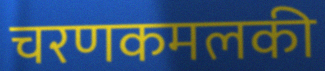
चरणकमलकी